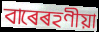
বাৰেৰহণীয়া